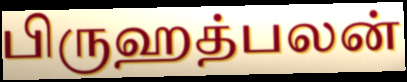
பிருஹத்பலன்